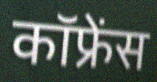
कॉफ्रेंस